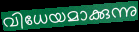
വിധേയമാക്കുന്നു